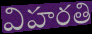
విహరతి